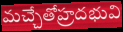
మచ్చేతోహ్రదభువి